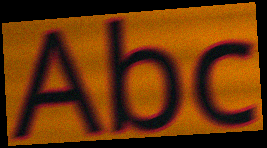
Abc